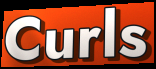
Curls